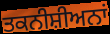
ਤਕਨੀਸ਼ੀਅਨਾਂ